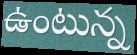
ఉంటున్న